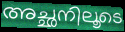
അച്ഛനിലൂടെ